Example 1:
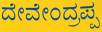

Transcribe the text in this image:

ದೇವೇಂದ್ರಪ್ಪ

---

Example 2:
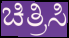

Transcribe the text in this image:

ಚಿತ್ರಿಸಿ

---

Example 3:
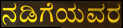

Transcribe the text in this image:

ನಡಿಗೆಯವರ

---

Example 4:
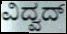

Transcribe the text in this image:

ವಿದ್ವದ್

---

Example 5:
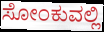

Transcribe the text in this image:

ಸೋಂಕುವಲ್ಲಿ